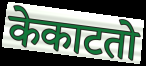
केकाटतो